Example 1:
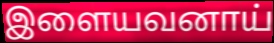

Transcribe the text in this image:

இளையவனாய்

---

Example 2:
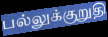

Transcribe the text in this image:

பல்லுக்குறுதி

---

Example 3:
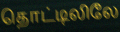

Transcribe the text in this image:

தொட்டிலிலே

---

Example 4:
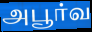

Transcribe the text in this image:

அபூர்வ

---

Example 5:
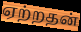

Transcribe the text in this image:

ஏற்றதன்